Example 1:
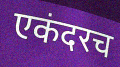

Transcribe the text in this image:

एकंदरच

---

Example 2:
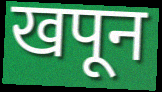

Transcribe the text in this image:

खपून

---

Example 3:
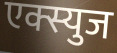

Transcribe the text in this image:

एक्स्युज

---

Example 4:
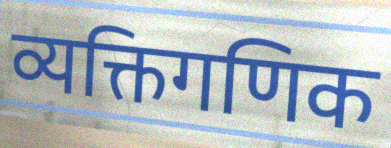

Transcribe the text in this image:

व्यक्तिगणिक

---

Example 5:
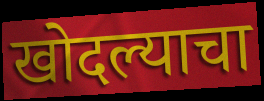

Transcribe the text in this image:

खोदल्याचा